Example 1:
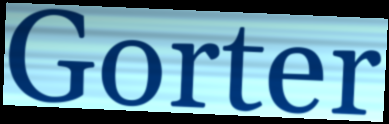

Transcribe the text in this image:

Gorter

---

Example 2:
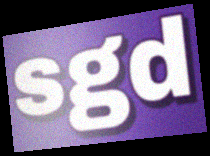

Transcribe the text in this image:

sgd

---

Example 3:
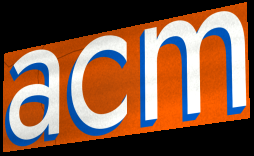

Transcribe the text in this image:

acm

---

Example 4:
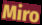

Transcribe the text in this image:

Miro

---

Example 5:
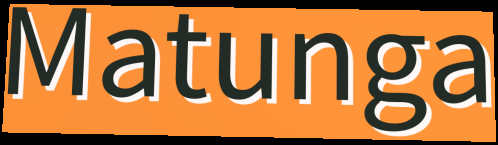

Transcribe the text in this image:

Matunga